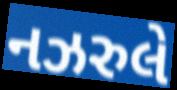
નઝરુલે